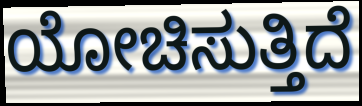
ಯೋಚಿಸುತ್ತಿದೆ